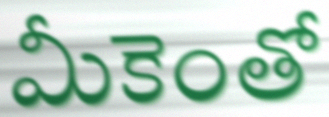
మీకెంతో